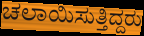
ಚಲಾಯಿಸುತ್ತಿದ್ದರು